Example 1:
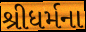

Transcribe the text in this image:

શ્રીધર્મના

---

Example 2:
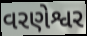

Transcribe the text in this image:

વરણેશ્વર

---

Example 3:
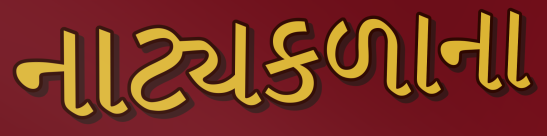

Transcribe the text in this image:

નાટ્યકળાના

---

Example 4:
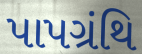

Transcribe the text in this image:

પાપગ્રંથિ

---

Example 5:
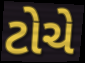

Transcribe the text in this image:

ટોચે